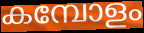
കമ്പോളം